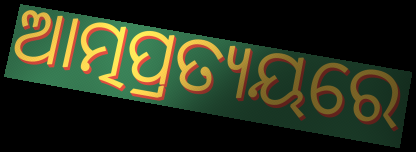
ଆତ୍ମପ୍ରତ୍ୟୟରେ